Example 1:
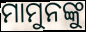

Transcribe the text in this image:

ମାମୁନଙ୍କୁ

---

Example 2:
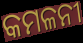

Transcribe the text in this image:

କମଳନୀ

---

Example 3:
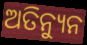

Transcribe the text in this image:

ଅତିନ୍ୟୁନ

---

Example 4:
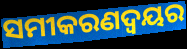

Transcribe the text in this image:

ସମୀକରଣଦ୍ଵୟର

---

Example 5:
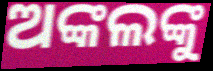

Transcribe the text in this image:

ଅଙ୍କଲଙ୍କୁ